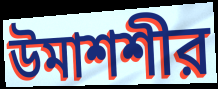
উমাশশীর